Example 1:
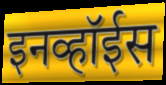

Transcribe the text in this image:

इनव्हॉईस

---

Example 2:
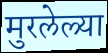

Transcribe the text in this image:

मुरलेल्या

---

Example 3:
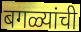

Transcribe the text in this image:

बगळ्यांची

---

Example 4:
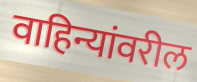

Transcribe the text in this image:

वाहिन्यांवरील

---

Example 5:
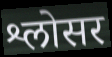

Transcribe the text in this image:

श्लोसर